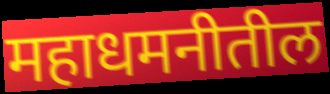
महाधमनीतील